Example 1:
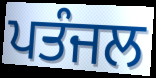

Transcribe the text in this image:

ਪਤੰਜਲ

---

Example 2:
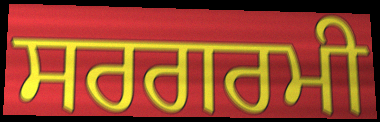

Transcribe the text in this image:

ਸਰਗਰਮੀ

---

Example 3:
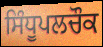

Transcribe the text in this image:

ਸਿੰਧੂਪਲਚੌਕ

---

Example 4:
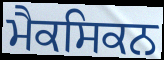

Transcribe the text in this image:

ਮੈਕਸਿਕਨ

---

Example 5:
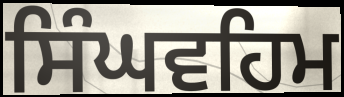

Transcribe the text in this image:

ਸਿੰਘਵਹਿਮ